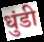
धुंडी